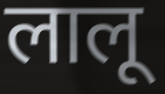
लालू